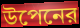
উপেনের